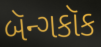
બૅન્ગકૉક